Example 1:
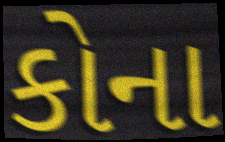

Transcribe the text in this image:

કોના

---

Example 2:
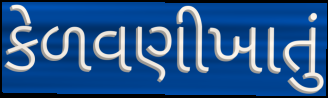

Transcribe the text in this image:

કેળવણીખાતું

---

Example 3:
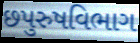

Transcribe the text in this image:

છપુરુષવિભાગ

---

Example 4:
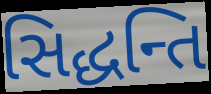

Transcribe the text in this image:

સિદ્ધન્તિ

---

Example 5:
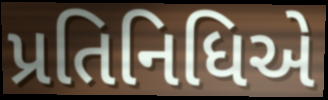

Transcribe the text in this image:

પ્રતિનિધિએ